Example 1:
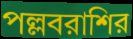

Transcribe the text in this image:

পল্লবরাশির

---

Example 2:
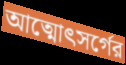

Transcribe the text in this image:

আত্মোৎসর্গের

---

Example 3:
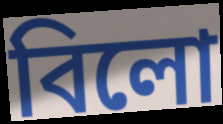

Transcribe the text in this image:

বিলো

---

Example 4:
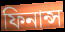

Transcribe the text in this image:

ফিনান্স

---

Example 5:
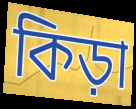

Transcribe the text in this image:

কিড়া